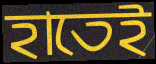
হাতেই